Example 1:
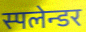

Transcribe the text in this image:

स्पलेन्डर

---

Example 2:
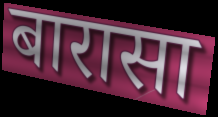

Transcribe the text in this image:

बारासा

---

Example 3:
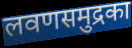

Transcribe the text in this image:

लवणसमुद्रका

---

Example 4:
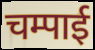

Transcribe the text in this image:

चम्‍पाई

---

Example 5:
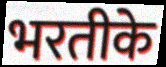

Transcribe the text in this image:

भरतीके